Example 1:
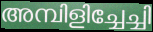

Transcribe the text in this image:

അമ്പിളിച്ചേച്ചി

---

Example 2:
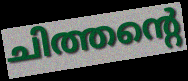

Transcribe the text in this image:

ചിത്തന്റെ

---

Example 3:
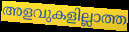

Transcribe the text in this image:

അളവുകളില്ലാത്ത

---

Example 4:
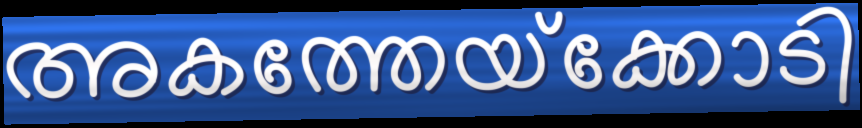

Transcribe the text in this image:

അകത്തേയ്‌ക്കോടി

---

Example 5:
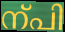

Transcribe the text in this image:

ന്പി